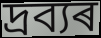
দ্ৰব্যৰ